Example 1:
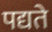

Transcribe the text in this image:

पद्यते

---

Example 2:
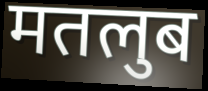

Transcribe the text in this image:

मतलुब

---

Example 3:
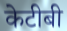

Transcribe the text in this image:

केटीबी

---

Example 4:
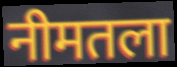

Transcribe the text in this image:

नीमतला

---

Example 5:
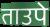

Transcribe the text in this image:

ताउपे